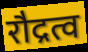
रौद्रत्व